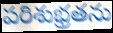
పరిశుభ్రతను